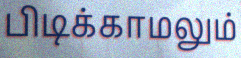
பிடிக்காமலும்